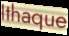
Ithaque